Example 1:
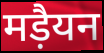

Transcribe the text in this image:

मड़ैयन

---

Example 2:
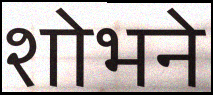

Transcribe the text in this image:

शोभने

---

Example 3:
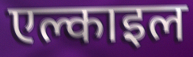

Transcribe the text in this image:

एल्काइल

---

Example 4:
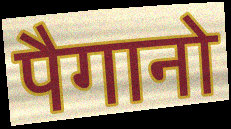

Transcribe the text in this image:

पैगानो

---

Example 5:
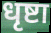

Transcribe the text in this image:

धृष्टा